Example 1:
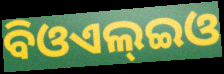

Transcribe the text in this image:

ବିଓଏଲ୍ଇଓ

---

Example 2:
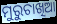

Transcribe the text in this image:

ମୁରୁଚାଖିଆ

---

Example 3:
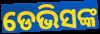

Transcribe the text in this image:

ଡେଭିସଙ୍କ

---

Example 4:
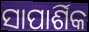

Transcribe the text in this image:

ସାପାର୍ଶିକ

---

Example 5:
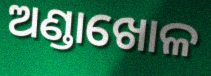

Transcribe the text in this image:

ଅଣ୍ଡାଖୋଳ